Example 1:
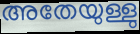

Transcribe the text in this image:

അതേയുള്ളു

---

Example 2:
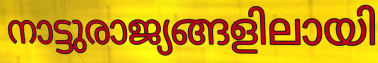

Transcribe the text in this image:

നാട്ടുരാജ്യങ്ങളിലായി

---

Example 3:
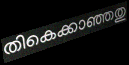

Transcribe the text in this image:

തികെക്കാഞ്ഞതു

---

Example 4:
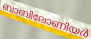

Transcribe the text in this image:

ബാബിലോണിയർ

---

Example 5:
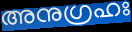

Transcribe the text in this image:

അനുഗ്രഹഃ